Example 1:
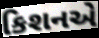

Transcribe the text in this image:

કિશનએ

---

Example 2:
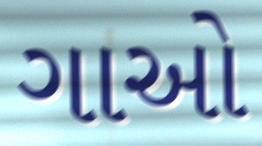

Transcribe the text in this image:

ગાઓ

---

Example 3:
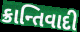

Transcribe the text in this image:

ક્રાન્તિવાદી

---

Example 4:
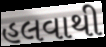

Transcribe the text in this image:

હલવાથી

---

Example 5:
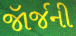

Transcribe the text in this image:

જૉર્જની